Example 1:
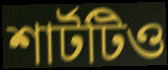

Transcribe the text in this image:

শার্টটিও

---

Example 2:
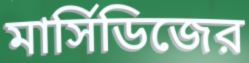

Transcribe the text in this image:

মার্সিডিজের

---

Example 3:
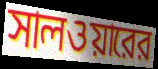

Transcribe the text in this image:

সালওয়ারের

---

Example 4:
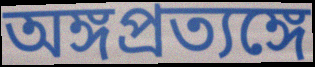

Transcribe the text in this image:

অঙ্গপ্রত্যঙ্গে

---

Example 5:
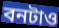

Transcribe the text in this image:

বনটাও